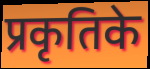
प्रकृतिके